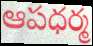
ఆపధర్మ